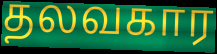
தலவகார